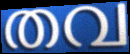
തവ